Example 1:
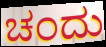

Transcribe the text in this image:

ಚಂದು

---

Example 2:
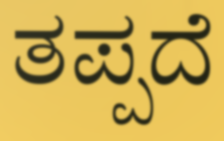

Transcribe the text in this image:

ತಪ್ಪದೆ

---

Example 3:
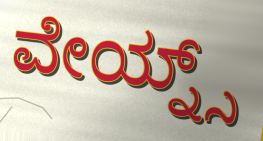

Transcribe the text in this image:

ವೇಯ್ನ್ಸ್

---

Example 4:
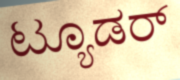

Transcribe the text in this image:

ಟ್ಯೂಡರ್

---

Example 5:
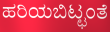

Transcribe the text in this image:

ಹರಿಯಬಿಟ್ಟಂತೆ